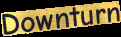
Downturn